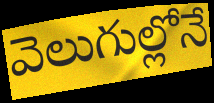
వెలుగుల్లోనే